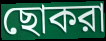
ছোকরা